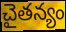
చైతన్యం